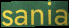
sania